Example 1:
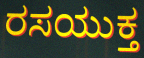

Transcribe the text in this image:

ರಸಯುಕ್ತ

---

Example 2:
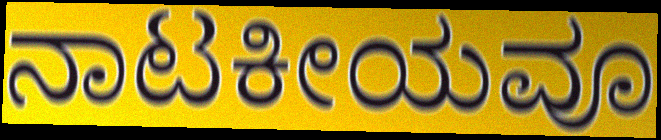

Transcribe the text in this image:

ನಾಟಕೀಯವೂ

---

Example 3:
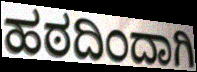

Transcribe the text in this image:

ಹಠದಿಂದಾಗಿ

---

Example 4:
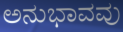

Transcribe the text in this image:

ಅನುಭಾವವು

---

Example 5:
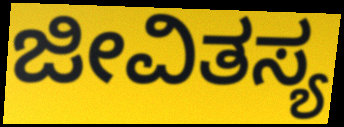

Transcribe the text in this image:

ಜೀವಿತಸ್ಯ